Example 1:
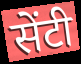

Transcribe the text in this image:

सेंटी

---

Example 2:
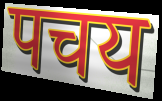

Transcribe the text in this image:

पचय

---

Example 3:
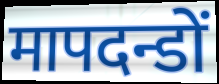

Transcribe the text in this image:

मापदन्डों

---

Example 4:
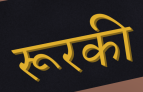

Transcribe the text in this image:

रूरकी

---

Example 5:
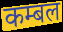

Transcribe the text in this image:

कम्बल